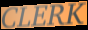
CLERK